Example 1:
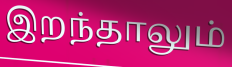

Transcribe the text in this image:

இறந்தாலும்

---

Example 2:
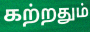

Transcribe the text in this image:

கற்றதும்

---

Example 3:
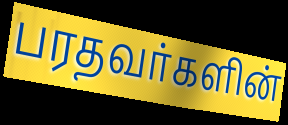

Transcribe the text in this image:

பரதவர்களின்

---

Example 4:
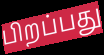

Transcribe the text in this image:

பிறப்பது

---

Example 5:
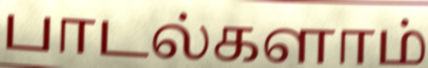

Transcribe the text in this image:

பாடல்களாம்